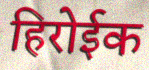
हिरोईक